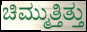
ಚಿಮ್ಮುತ್ತಿತ್ತು